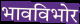
भावविभोर